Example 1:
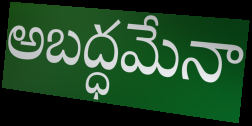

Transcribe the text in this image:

అబద్ధమేనా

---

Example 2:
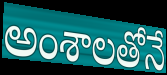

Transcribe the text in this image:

అంశాలతోనే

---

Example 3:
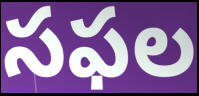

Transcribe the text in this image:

సఫల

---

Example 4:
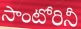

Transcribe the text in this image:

సాంటోరినీ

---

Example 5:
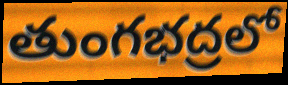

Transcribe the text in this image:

తుంగభద్రలో